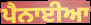
ਪੈਨਾਈਆ